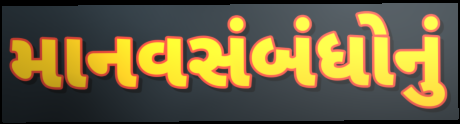
માનવસંબંધોનું